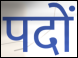
पदों